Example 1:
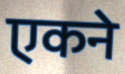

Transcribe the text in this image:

एकने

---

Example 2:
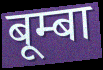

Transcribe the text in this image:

बूम्बा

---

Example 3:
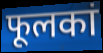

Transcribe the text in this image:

फूलकां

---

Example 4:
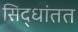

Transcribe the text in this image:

सिद्धांतत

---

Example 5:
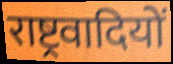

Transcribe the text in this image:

राष्ट्रवादियों